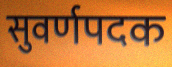
सुवर्णपदक